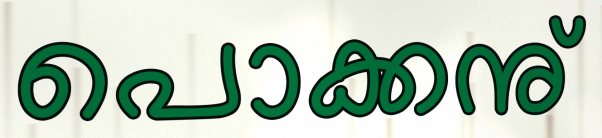
പൊക്കനു്